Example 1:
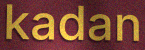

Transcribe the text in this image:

kadan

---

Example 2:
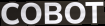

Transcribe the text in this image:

COBOT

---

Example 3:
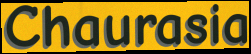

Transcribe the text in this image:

Chaurasia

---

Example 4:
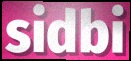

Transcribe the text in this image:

sidbi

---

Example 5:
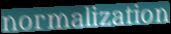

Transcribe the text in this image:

normalization